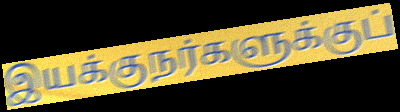
இயக்குநர்களுக்குப்